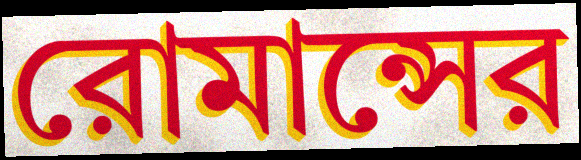
রোমান্সের